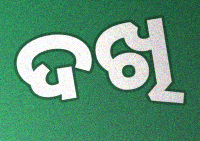
ଦଖି